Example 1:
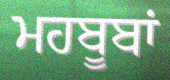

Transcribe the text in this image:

ਮਹਬੂਬਾਂ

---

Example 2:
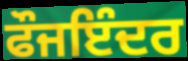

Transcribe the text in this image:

ਫੌਜਇੰਦਰ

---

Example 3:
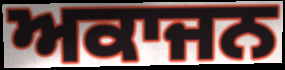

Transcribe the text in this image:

ਅਕਾਜਨ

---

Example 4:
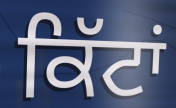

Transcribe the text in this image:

ਕਿੱਟਾਂ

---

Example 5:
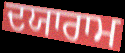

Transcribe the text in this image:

ਦਯਾਰਾਮ